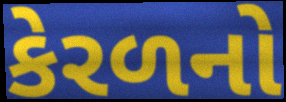
કેરળનો